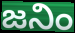
జనిం